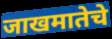
जाखमातेचे